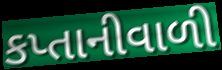
કપ્તાનીવાળી